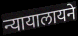
न्यायालायने